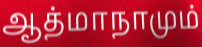
ஆத்மாநாமும்